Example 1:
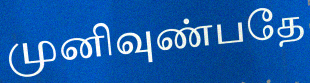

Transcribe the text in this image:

முனிவுண்பதே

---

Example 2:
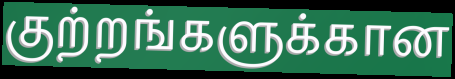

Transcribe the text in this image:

குற்றங்களுக்கான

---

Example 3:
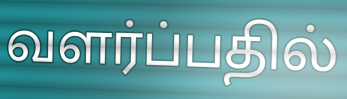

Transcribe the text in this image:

வளர்ப்பதில்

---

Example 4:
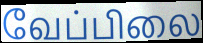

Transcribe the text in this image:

வேப்பிலை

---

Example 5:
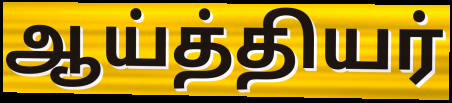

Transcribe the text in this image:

ஆய்த்தியர்